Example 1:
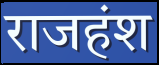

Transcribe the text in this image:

राजहंश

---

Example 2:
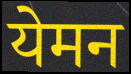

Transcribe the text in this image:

येमन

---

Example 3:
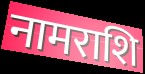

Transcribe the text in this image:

नामराशि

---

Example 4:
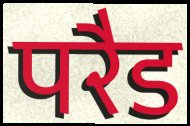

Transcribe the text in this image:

परैड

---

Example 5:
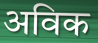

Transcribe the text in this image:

अविक